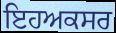
ਇਹਅਕਸਰ